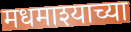
मधमाश्याच्या